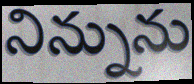
నిన్నును